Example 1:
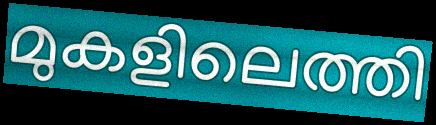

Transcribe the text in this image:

മുകളിലെത്തി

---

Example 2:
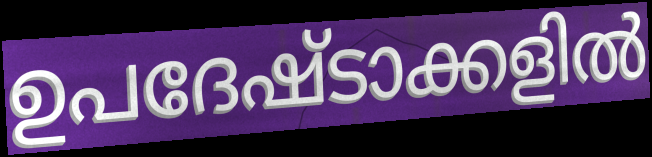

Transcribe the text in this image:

ഉപദേഷ്ടാക്കളിൽ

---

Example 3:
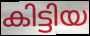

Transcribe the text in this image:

കിട്ടിയ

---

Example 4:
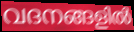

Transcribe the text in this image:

വദനങ്ങളിൽ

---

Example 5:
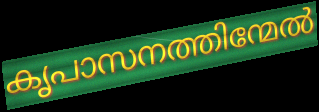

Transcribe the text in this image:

കൃപാസനത്തിന്മേൽ